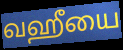
வஹீயை